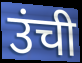
उंची